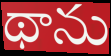
థాను